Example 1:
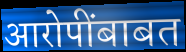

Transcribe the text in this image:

आरोपींबाबत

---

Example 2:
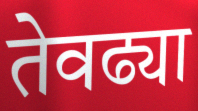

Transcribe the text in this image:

तेवढ्या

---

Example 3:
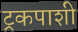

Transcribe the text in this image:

ट्रकपाशी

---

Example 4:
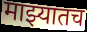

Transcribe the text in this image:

माझ्यातच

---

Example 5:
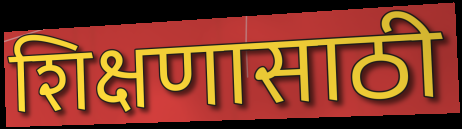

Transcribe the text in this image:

शिक्षणासाठी